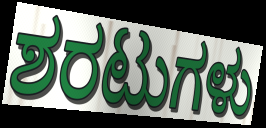
ಶರಟುಗಳು